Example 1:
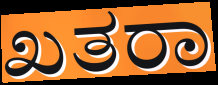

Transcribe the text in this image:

ಖತರಾ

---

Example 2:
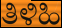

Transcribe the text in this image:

ತಿಳಿಹಿ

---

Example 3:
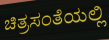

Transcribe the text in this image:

ಚಿತ್ರಸಂತೆಯಲ್ಲಿ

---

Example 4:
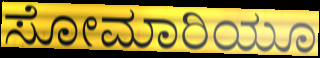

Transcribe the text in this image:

ಸೋಮಾರಿಯೂ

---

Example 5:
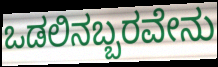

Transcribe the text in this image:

ಒಡಲಿನಬ್ಬರವೇನು